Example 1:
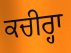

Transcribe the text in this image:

ਕਚੀਰ੍ਹਾ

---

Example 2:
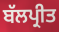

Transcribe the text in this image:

ਬੱਲਪ੍ਰੀਤ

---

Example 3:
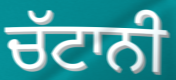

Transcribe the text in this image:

ਚੱਟਾਨੀ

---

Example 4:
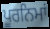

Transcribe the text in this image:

ਪੂਰਨਿਮਾਂ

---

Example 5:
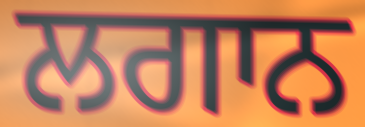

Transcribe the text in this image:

ਲਗਾਨ